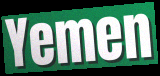
Yemen